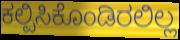
ಕಲ್ಪಿಸಿಕೊಂಡಿರಲಿಲ್ಲ